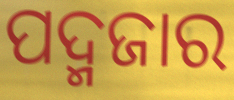
ପଦ୍ମଜାର